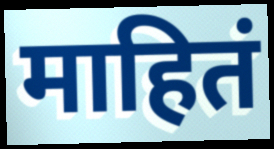
माहितं